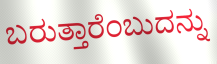
ಬರುತ್ತಾರೆಂಬುದನ್ನು